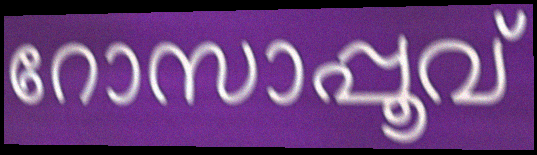
റോസാപ്പൂവ്